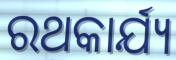
ରଥକାର୍ଯ୍ୟ